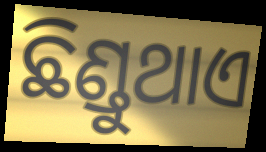
ଛିଣ୍ଡୁଥାଏ